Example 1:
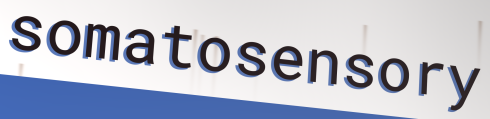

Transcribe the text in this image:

somatosensory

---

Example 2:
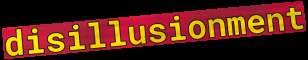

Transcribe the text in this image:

disillusionment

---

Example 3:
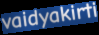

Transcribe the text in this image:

vaidyakirti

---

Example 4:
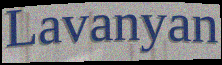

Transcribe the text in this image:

Lavanyan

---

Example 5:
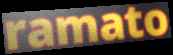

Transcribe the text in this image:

ramato